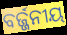
ବର୍ଜ୍ଜନୀୟ